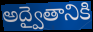
అద్వైతానికి